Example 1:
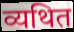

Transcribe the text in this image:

व्यथित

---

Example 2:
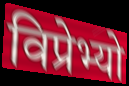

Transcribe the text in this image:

विप्रेभ्यो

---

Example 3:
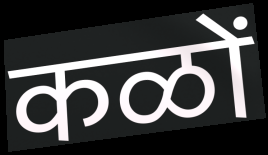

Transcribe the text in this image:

कळों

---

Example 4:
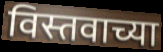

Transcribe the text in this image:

विस्तवाच्या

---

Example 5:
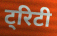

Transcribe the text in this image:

ट्रिटी